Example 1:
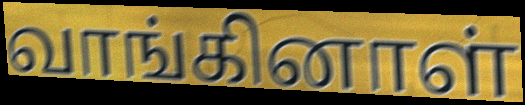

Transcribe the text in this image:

வாங்கினாள்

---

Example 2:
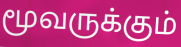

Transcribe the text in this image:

மூவருக்கும்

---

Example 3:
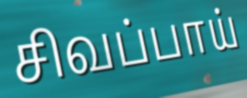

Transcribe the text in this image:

சிவப்பாய்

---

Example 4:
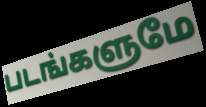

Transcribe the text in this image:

படங்களுமே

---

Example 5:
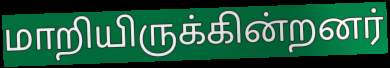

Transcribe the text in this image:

மாறியிருக்கின்றனர்